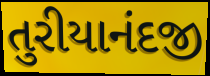
તુરીયાનંદજી